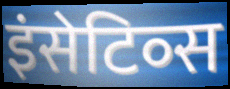
इंसेटिव्स